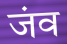
जंव